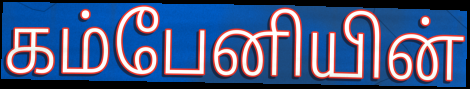
கம்பேனியின்